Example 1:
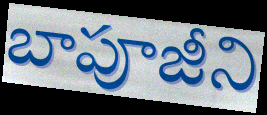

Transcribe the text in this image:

బాపూజీని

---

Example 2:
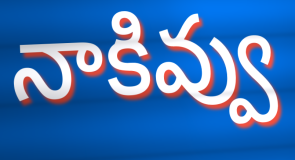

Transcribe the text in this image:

నాకివ్వు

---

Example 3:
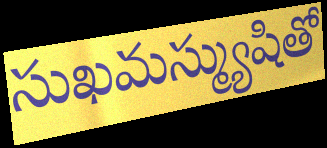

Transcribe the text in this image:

సుఖమస్మ్యుషితో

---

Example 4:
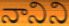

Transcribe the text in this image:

నానిని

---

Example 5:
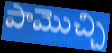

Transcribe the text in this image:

పామొచ్చి